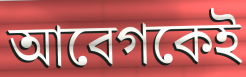
আবেগকেই